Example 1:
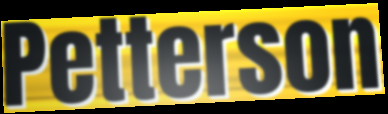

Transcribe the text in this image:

Petterson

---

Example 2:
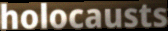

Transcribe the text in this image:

holocausts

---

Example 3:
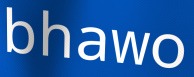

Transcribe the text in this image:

bhawo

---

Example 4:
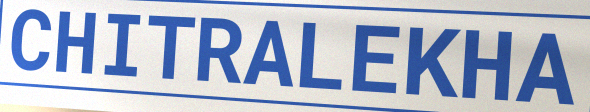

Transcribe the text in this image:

CHITRALEKHA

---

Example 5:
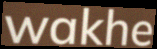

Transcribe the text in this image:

wakhe